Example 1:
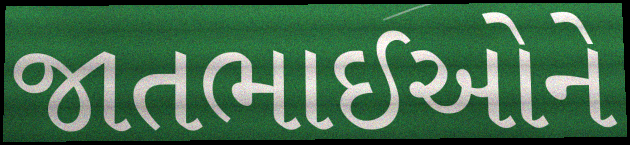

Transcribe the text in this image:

જાતભાઈઓને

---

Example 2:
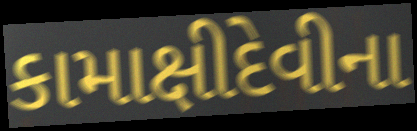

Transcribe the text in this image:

કામાક્ષીદેવીના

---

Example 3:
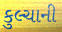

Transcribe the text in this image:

કુલ્ચાની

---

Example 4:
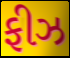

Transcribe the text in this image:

ફીઝ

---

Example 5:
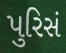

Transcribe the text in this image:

પુરિસં